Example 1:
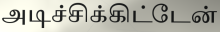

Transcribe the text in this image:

அடிச்சிக்கிட்டேன்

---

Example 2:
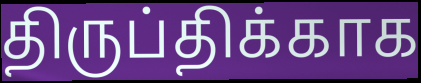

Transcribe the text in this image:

திருப்திக்காக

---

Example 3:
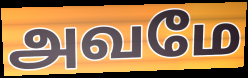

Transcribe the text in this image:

அவமே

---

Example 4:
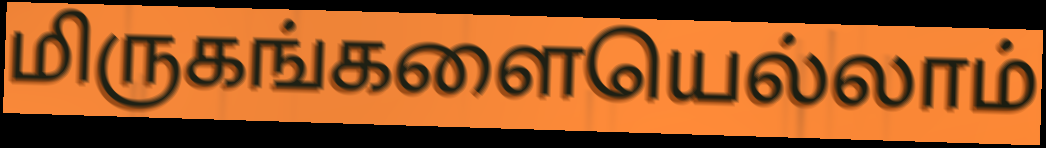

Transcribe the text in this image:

மிருகங்களையெல்லாம்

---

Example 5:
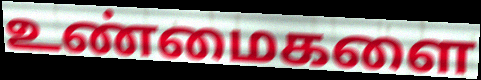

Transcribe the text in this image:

உண்மைகளை